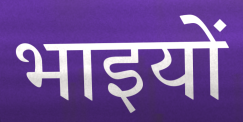
भाइयों